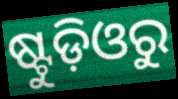
ଷ୍ଟୁଡ଼ିଓରୁ